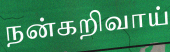
நன்கறிவாய்